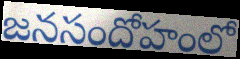
జనసందోహంలో